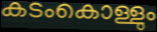
കടംകൊള്ളും